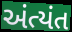
અંત્યંત